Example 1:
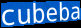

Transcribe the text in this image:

cubeba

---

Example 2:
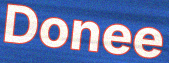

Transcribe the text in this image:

Donee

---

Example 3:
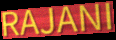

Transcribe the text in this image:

RAJANI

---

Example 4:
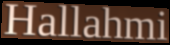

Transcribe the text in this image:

Hallahmi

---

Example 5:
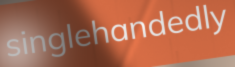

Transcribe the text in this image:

singlehandedly